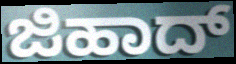
ಜಿಹಾದ್